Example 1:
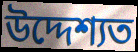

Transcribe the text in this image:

উদ্দেশ্যত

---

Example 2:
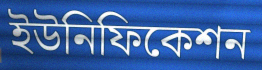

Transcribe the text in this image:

ইউনিফিকেশন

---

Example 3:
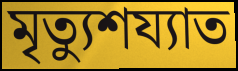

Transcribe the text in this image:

মৃত্যুশয্যাত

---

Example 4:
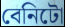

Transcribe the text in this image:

বেনিটো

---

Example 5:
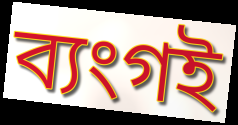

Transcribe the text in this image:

ব্যংগই